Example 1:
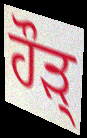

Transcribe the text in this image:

ਹੌੜ੍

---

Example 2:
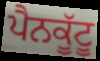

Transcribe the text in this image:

ਪੈਨਕੂੱਟੂ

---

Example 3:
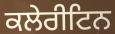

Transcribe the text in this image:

ਕਲੇਰੀਟਿਨ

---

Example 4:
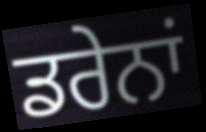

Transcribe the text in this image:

ਡਰੇਨਾਂ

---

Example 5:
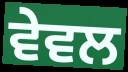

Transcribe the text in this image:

ਵੇਵਲ